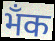
भँक